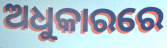
ଅଧୁକାରରେ